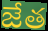
జేత